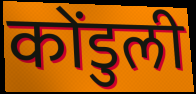
कोंडुली